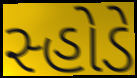
સ્હોડે